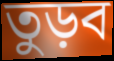
তুড়ব